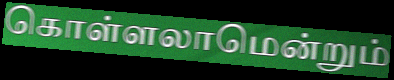
கொள்ளலாமென்றும்